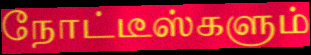
நோட்டீஸ்களும்